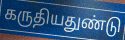
கருதியதுண்டு